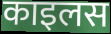
काइलस